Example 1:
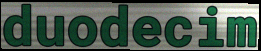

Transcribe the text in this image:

duodecim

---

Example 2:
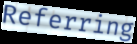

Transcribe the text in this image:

Referring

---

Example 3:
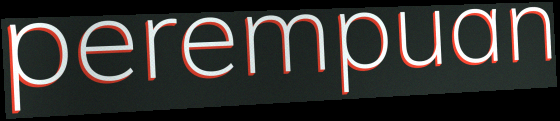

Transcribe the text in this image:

perempuan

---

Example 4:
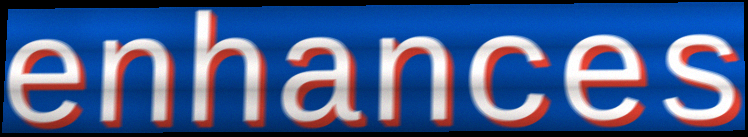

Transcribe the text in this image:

enhances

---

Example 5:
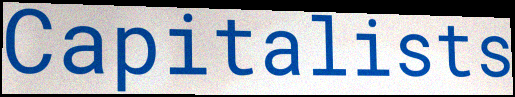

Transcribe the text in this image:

Capitalists